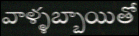
వాళ్ళబ్బాయితో